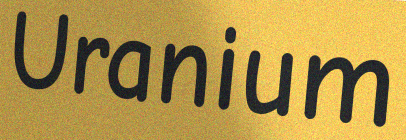
Uranium